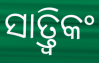
ସାତ୍ତ୍ୱିକଂ